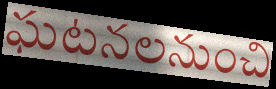
ఘటనలనుంచి